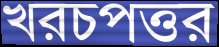
খরচপত্তর